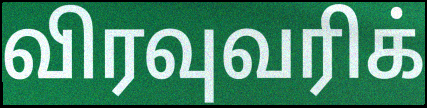
விரவுவரிக்